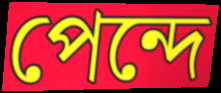
পেন্দে